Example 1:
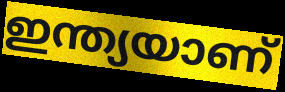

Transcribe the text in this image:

ഇന്ത്യയാണ്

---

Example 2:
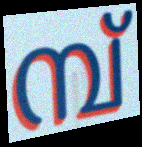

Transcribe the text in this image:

മ്പ്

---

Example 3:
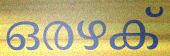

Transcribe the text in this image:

ഒരഴക്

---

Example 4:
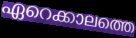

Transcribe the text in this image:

ഏറെക്കാലത്തെ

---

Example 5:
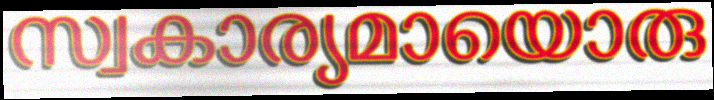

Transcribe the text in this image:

സ്വകാര്യമായൊരു